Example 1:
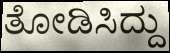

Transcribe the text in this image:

ತೋಡಿಸಿದ್ದು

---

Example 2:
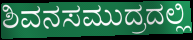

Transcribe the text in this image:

ಶಿವನಸಮುದ್ರದಲ್ಲಿ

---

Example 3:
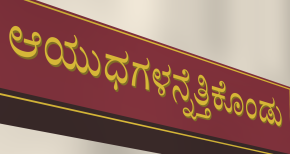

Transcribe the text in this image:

ಆಯುಧಗಳನ್ನೆತ್ತಿಕೊಂಡು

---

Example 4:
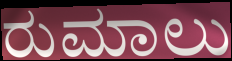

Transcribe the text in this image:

ರುಮಾಲು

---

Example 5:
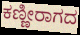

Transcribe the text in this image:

ಕಣ್ಣೀರಾಗದ